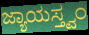
ಜ್ಯಾಯಸ್ತ್ವಂ